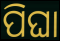
ପିଘା